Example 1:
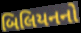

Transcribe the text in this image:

બિલિયનનો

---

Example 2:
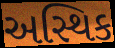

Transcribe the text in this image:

અસ્થિક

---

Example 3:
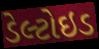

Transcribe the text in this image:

ડેલ્ટોઇડ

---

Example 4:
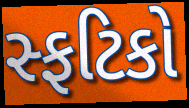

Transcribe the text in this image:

સ્ફટિકો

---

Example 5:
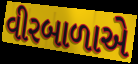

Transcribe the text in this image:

વીરબાળાએ